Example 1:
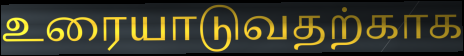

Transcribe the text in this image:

உரையாடுவதற்காக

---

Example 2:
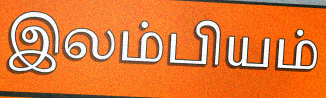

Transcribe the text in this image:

இலம்பியம்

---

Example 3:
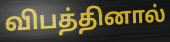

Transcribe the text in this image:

விபத்தினால்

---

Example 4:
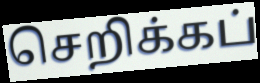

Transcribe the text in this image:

செறிக்கப்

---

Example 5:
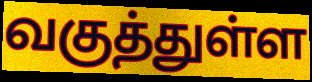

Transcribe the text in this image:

வகுத்துள்ள